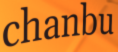
chanbu